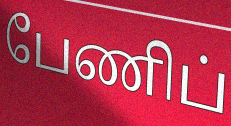
பேணிப்